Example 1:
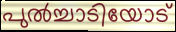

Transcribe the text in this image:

പുൽച്ചാടിയോട്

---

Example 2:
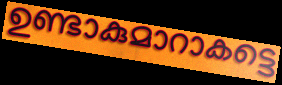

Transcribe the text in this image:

ഉണ്ടാകുമാറാകട്ടെ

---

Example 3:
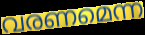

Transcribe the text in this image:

വരണമെന്ന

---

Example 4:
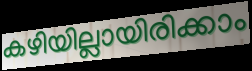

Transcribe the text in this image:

കഴിയില്ലായിരിക്കാം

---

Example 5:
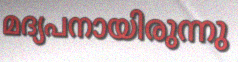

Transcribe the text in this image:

മദ്യപനായിരുന്നു